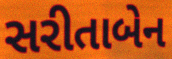
સરીતાબેન